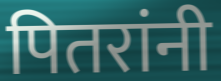
पितरांनी